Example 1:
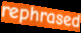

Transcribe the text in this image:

rephrased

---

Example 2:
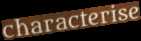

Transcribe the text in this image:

characterise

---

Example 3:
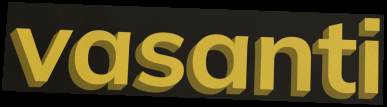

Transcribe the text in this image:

vasanti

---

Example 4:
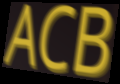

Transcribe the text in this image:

ACB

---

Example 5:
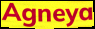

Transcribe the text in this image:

Agneya